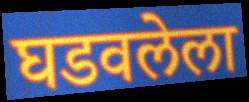
घडवलेला